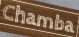
Chamba